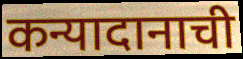
कन्यादानाची